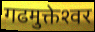
गढमुक्तेश्वर